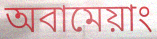
অবামেয়াং